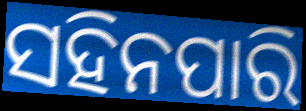
ସହିନପାରି